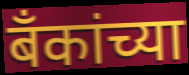
बॅंकांच्या